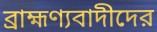
ব্রাহ্মণ্যবাদীদের